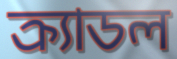
ক্র্যাডল